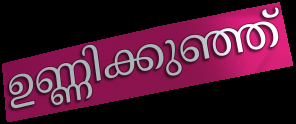
ഉണ്ണിക്കുഞ്ഞ്